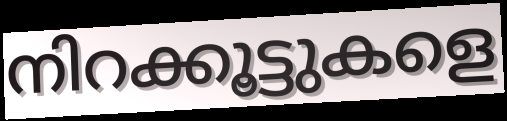
നിറക്കൂട്ടുകളെ